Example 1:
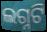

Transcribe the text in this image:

ଲଗ୍ନଟି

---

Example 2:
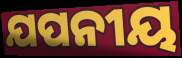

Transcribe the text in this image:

ଯପନୀୟ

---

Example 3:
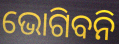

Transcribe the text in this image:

ଭୋଗିବନି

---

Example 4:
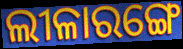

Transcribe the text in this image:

ଲୀଳାରଙ୍ଗେ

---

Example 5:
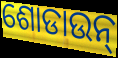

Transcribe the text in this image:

ଶୋଡାଉନ୍